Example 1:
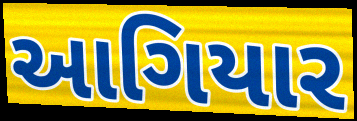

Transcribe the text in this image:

આગિયાર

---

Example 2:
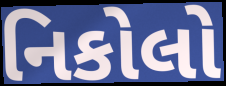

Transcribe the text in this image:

નિકોલો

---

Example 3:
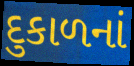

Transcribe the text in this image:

દુકાળનાં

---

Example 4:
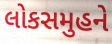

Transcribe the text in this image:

લોકસમુહને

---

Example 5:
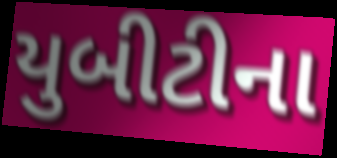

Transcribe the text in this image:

યુબીટીના